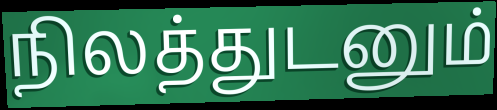
நிலத்துடனும்